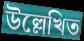
উল্লেখিত